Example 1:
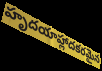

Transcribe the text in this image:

హృదయాహ్లాదకరమైన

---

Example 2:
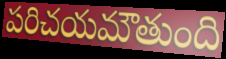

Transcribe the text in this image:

పరిచయమౌతుంది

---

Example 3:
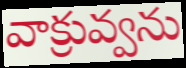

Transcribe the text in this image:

వాక్రువ్వను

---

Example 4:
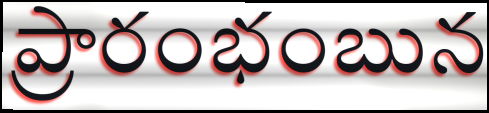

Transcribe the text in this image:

ప్రారంభంబున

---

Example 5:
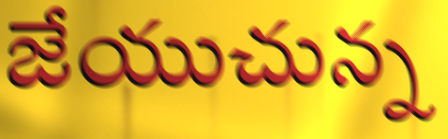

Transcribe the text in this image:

జేయుచున్న